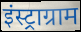
इंस्ट्राग्राम